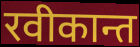
रवीकान्त